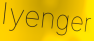
Iyenger